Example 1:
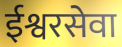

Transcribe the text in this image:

ईश्वरसेवा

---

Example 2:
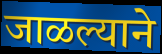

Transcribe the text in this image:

जाळल्याने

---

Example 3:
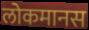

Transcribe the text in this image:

लोकमानस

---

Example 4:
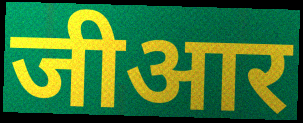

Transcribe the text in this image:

जीआर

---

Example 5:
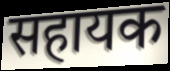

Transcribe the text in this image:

सहायक